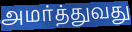
அமர்த்துவது